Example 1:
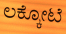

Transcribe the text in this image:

ಲಕ್ಕೋಟೆ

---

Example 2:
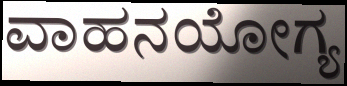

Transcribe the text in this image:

ವಾಹನಯೋಗ್ಯ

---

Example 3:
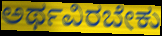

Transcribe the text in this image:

ಅರ್ಥವಿರಬೇಕು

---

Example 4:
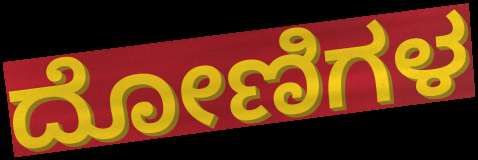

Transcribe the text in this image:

ದೋಣಿಗಳ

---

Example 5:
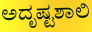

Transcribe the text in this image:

ಅದೃಷ್ಟಶಾಲಿ